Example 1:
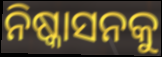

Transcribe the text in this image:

ନିଷ୍କାସନକୁ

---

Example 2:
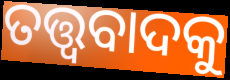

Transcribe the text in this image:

ତତ୍ତ୍ୱବାଦକୁ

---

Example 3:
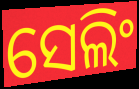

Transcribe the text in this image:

ସେଲିଂ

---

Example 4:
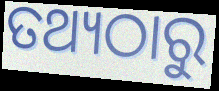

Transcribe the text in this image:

ତଥ୍ୟଠାରୁ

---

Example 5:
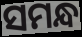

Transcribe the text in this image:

ସମନ୍ଧ